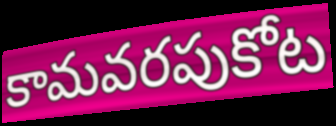
కామవరపుకోట